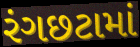
રંગછટામાં